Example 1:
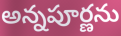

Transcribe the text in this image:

అన్నపూర్ణను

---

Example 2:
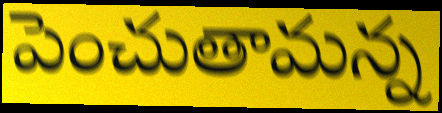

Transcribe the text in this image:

పెంచుతామన్న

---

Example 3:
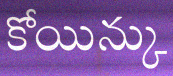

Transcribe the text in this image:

కోయిన్కు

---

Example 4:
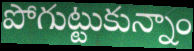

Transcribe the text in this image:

పోగుట్టుకున్నాం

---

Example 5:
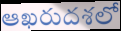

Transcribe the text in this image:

ఆఖరుదశలో